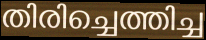
തിരിച്ചെത്തിച്ച